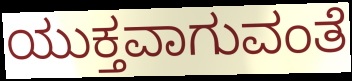
ಯುಕ್ತವಾಗುವಂತೆ